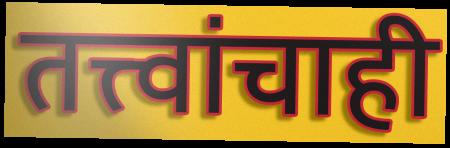
तत्त्वांचाही